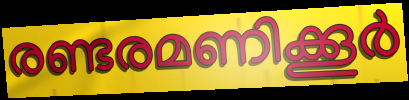
രണ്ടരമണിക്കൂർ